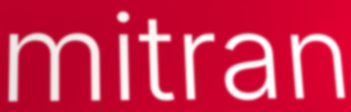
mitran